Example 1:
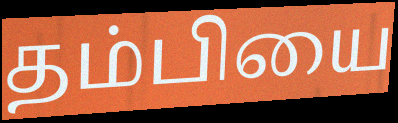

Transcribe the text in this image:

தம்பியை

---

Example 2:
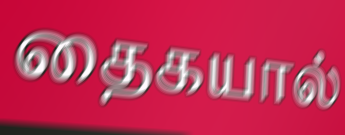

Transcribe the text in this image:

தைகயால்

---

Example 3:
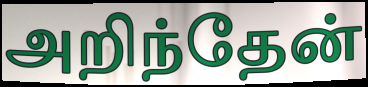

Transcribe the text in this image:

அறிந்தேன்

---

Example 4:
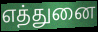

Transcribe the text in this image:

எத்துனை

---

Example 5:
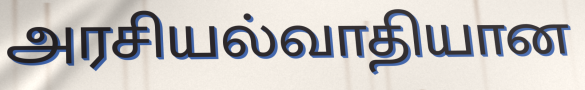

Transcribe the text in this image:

அரசியல்வாதியான